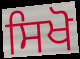
ਸਿਖੋ